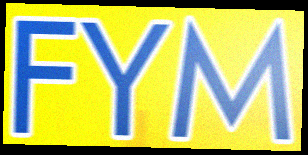
FYM